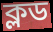
ক্লড